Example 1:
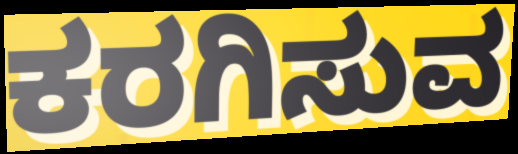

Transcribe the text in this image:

ಕರಗಿಸುವ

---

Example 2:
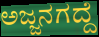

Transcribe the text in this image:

ಅಜ್ಜನಗದ್ದೆ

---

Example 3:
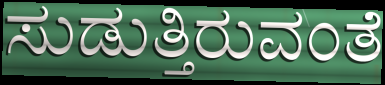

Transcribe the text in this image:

ಸುಡುತ್ತಿರುವಂತೆ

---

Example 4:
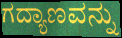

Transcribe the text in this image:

ಗದ್ಯಾಣವನ್ನು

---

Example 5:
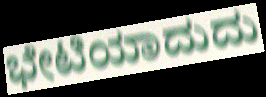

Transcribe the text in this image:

ಭೇಟಿಯಾದುದು